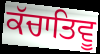
ਕੱਚਾਤਿਵੂ